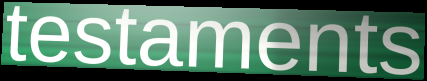
testaments